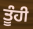
ਤੂੰਹੀ